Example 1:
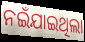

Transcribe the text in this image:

ନଇଁଯାଇଥିଲା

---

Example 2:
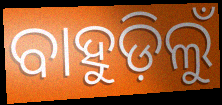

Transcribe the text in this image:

ବାହୁଡ଼ିଲୁଁ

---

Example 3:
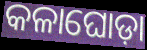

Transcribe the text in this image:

କଳାଘୋଡ଼ା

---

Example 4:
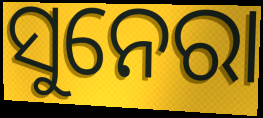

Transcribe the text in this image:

ସୁନେରା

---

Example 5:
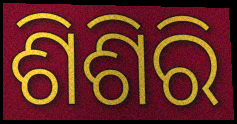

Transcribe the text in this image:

ଶିଶିରି